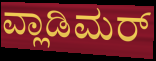
ವ್ಲಾಡಿಮರ್